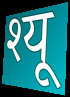
श्यू